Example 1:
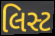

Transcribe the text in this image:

લિસ્ટ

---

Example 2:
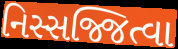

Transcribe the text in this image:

નિસ્સજ્જિત્વા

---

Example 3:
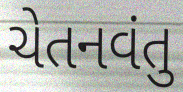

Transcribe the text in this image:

ચેતનવંતુ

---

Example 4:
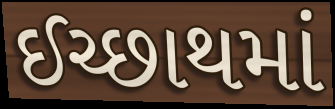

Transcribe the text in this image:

ઈચ્છાથમાં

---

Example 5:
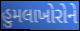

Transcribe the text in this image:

હુમલાખોરોને